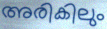
അരികിലും